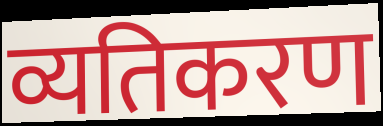
व्यतिकरण